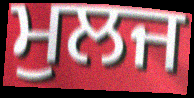
ਮੁਲਜ